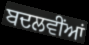
ਬਦਲਵੀਂਆਂ